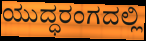
ಯುದ್ಧರಂಗದಲ್ಲಿ